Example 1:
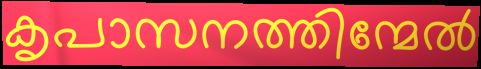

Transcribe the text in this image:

കൃപാസനത്തിന്മേൽ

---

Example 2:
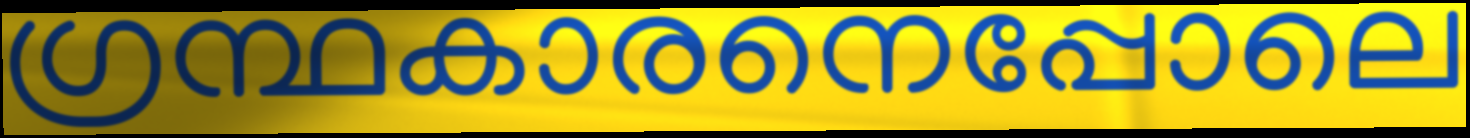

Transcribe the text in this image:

ഗ്രന്ഥകാരനെപ്പോലെ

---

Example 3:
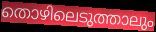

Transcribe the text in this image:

തൊഴിലെടുത്താലും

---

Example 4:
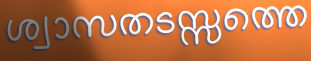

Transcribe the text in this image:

ശ്വാസതടസ്സത്തെ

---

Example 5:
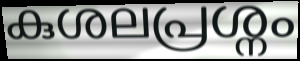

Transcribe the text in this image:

കുശലപ്രശ്നം